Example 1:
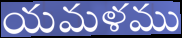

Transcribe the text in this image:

యమళము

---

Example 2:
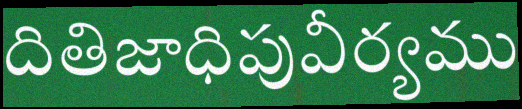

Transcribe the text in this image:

దితిజాధిపువీర్యము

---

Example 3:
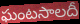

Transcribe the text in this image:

ఘంటసాలదీ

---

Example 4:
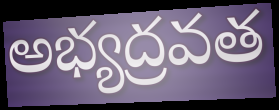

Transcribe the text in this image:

అభ్యద్రవత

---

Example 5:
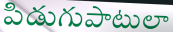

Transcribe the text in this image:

పిడుగుపాటులా